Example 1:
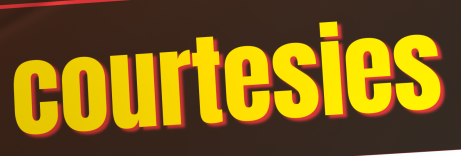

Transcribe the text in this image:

courtesies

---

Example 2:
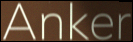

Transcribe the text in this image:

Anker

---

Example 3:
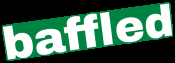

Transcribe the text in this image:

baffled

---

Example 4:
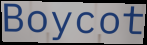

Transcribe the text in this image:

Boycot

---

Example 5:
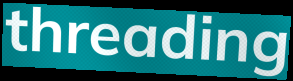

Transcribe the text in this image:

threading